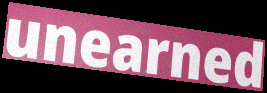
unearned